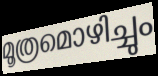
മൂത്രമൊഴിച്ചും